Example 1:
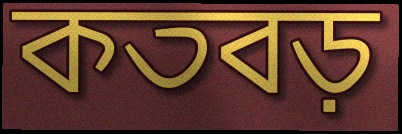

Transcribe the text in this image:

কতবড়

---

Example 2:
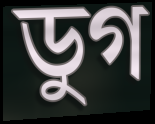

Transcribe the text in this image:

ডুগ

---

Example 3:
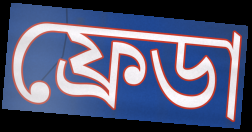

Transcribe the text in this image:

ফ্রেডা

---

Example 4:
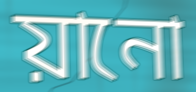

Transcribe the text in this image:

য়ানো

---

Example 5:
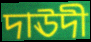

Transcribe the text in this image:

দাঊদী